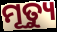
ମୂତ୍ୟୁ